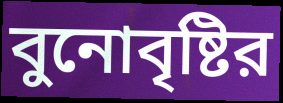
বুনোবৃষ্টির